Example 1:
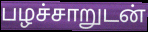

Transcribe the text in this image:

பழச்சாறுடன்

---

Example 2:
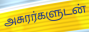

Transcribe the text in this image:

அசுரர்களுடன்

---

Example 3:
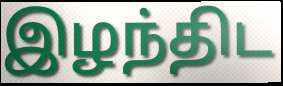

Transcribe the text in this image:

இழந்திட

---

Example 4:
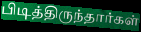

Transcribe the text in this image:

பிடித்திருந்தார்கள்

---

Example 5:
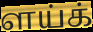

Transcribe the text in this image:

ளய்க்